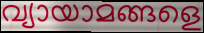
വ്യായാമങ്ങളെ